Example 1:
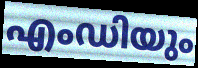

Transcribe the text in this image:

എംഡിയും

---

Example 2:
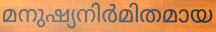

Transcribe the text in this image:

മനുഷ്യനിർമിതമായ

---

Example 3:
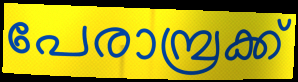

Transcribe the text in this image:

പേരാമ്പ്രക്ക്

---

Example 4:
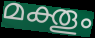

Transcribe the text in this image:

മക്തൂം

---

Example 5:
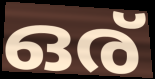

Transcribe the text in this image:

ഒര്